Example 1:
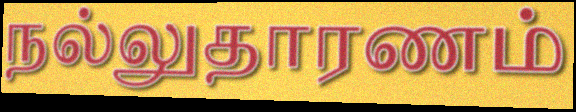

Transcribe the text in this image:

நல்லுதாரணம்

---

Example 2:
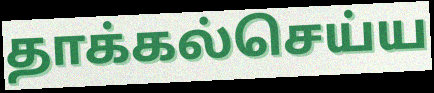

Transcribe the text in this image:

தாக்கல்செய்ய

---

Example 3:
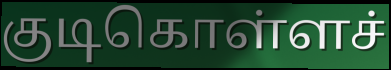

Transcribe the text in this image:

குடிகொள்ளச்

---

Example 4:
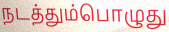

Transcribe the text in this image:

நடத்தும்பொழுது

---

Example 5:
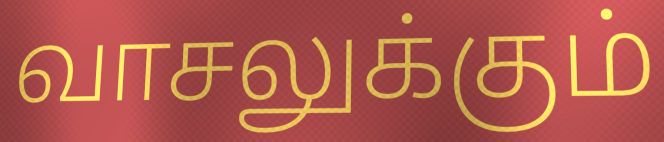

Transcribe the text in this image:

வாசலுக்கும்